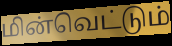
மின்வெட்டும்